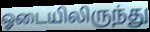
ஓடையிலிருந்து